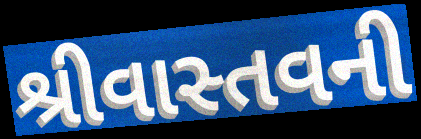
શ્રીવાસ્તવની